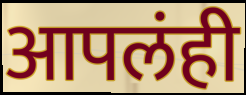
आपलंही